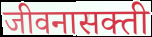
जीवनासक्ती